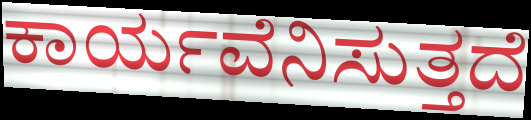
ಕಾರ್ಯವೆನಿಸುತ್ತದೆ